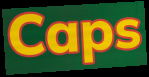
Caps